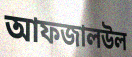
আফজালউল